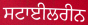
ਸਟਾਈਲਰੀਨ